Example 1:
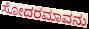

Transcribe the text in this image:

ಸೋದರಮಾವನು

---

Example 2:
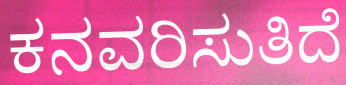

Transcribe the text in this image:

ಕನವರಿಸುತಿದೆ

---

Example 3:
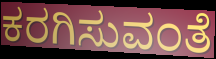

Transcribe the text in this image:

ಕರಗಿಸುವಂತೆ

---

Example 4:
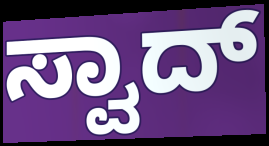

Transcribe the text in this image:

ಸ್ವಾದ್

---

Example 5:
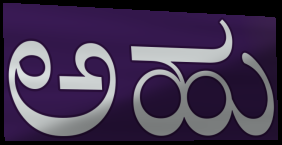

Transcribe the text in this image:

ಅಹು